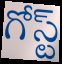
గోస్ట్